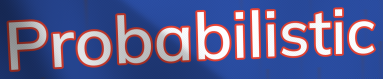
Probabilistic